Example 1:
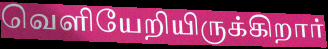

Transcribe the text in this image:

வெளியேறியிருக்கிறார்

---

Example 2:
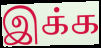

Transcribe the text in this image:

இக்க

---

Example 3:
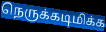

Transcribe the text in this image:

நெருக்கடிமிக்க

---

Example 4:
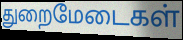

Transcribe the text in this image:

துறைமேடைகள்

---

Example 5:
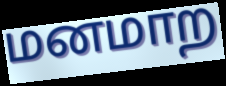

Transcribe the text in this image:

மனமாற